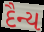
દૈન્ય